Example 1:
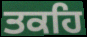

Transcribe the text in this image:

ਤਕਹਿ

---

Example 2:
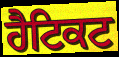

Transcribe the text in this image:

ਹੈਟਿਕਟ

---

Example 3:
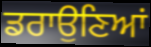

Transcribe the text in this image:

ਡਰਾਉਣਿਆਂ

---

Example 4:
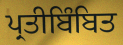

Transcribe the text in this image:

ਪ੍ਰਤੀਬਿੰਬਿਤ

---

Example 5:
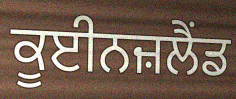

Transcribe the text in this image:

ਕੂਈਨਜ਼ਲੈਂਡ